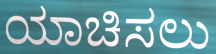
ಯಾಚಿಸಲು